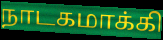
நாடகமாக்கி